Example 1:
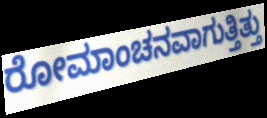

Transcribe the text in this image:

ರೋಮಾಂಚನವಾಗುತ್ತಿತ್ತು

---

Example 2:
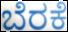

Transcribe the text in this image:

ಬೆರಕೆ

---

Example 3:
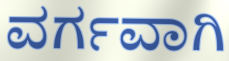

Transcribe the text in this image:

ವರ್ಗವಾಗಿ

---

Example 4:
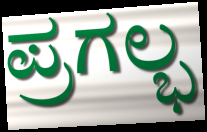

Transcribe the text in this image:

ಪ್ರಗಲ್ಭ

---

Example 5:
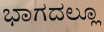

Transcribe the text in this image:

ಭಾಗದಲ್ಲೂ